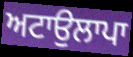
ਅਟਾਉਲਾਪਾ